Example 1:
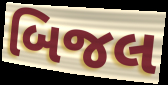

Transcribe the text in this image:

બિજલ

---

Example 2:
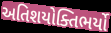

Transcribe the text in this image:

અતિશયોક્તિભર્યો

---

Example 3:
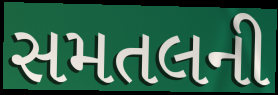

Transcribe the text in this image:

સમતલની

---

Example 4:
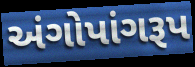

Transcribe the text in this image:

અંગોપાંગરૂપ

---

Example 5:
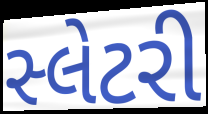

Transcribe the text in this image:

સ્લેટરી